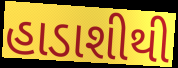
હાડાશીથી